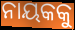
ନାୟକକୁ